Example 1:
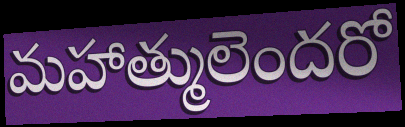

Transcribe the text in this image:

మహాత్ములెందరో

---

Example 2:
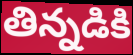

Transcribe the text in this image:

తిన్నడికి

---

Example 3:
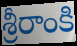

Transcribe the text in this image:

శ్రీరాంకి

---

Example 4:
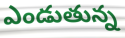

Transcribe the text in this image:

ఎండుతున్న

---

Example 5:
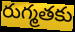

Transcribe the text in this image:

రుగ్మతకు